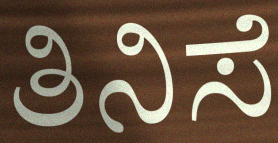
ತಿನಿಸೆ